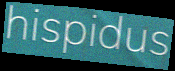
hispidus